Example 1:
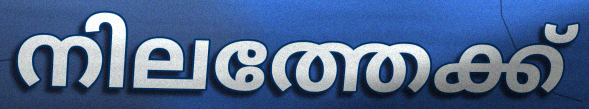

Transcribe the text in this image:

നിലത്തേക്ക്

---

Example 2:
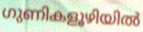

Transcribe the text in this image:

ഗുണികളൂഴിയിൽ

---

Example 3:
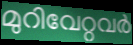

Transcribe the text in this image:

മുറിവേറ്റവർ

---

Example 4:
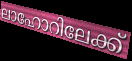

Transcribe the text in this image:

ലാഹോറിലേക്ക്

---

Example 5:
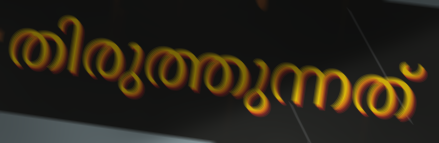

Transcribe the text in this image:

തിരുത്തുന്നത്